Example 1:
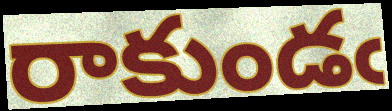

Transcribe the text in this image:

రాకుండఁ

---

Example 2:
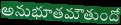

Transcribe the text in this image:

అనుభూతమౌతుందో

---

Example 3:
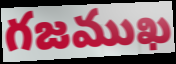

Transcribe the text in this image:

గజముఖ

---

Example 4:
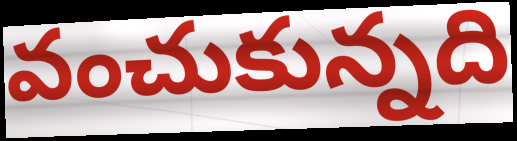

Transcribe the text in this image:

వంచుకున్నది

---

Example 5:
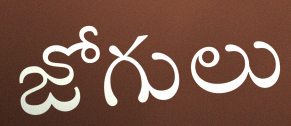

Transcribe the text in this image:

జోగులు